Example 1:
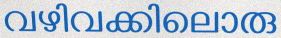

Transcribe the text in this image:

വഴിവക്കിലൊരു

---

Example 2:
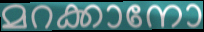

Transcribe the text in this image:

മറക്കാനോ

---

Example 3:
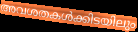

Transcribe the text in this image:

അവശതകൾക്കിടയിലും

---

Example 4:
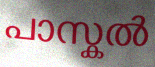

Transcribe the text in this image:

പാസ്കൽ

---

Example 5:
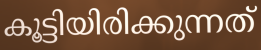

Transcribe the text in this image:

കൂട്ടിയിരിക്കുന്നത്